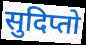
सुदिप्तो